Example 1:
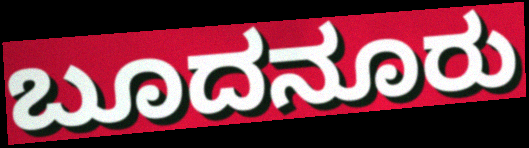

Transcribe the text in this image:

ಬೂದನೂರು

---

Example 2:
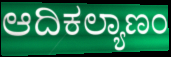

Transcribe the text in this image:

ಆದಿಕಲ್ಯಾಣಂ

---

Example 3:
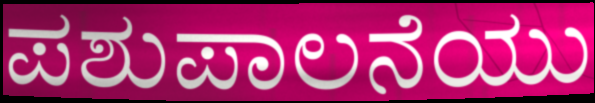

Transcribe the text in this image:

ಪಶುಪಾಲನೆಯು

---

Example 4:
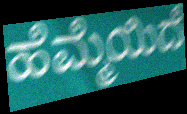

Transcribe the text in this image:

ಹೆಮ್ಮೆಯಿದೆ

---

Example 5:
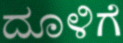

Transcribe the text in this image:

ದೂಳಿಗೆ